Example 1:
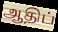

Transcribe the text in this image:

ஆதிப்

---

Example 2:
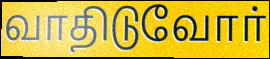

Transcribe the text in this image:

வாதிடுவோர்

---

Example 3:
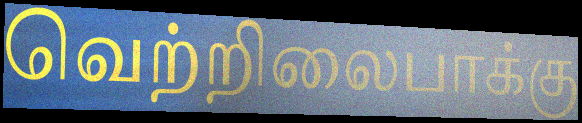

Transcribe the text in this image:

வெற்றிலைபாக்கு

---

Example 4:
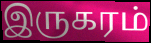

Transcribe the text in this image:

இருகரம்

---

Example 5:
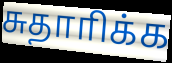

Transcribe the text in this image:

சுதாரிக்க